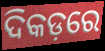
ଦିକଡ଼ରେ